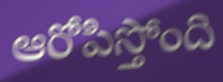
ఆరోపిస్తోంది